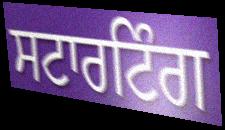
ਸਟਾਰਟਿੰਗ